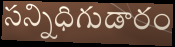
సన్నిధిగుడారం